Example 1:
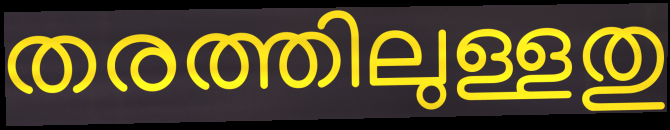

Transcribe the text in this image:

തരത്തിലുള്ളതു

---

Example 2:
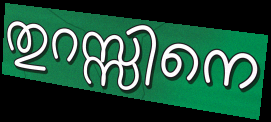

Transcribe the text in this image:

തുറസ്സിനെ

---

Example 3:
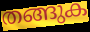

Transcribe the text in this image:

തങ്ങുക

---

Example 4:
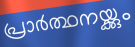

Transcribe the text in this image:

പ്രാർത്ഥനയ്ക്കും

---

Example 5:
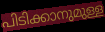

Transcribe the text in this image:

പിടിക്കാനുമുള്ള